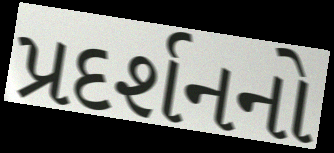
પ્રદર્શનનો